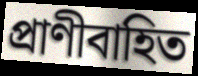
প্রাণীবাহিত